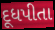
દૂધપીતા